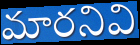
మారనివి